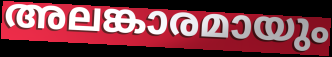
അലങ്കാരമായും